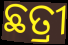
ଛତ୍ରୀ